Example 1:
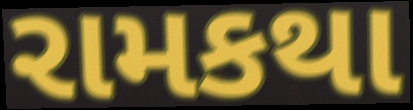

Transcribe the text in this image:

રામકથા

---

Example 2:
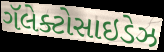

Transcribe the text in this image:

ગૅલેક્ટોસાઇડેઝ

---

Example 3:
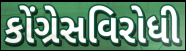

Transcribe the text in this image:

કોંગ્રેસવિરોધી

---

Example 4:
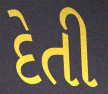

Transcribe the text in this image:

દેતી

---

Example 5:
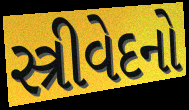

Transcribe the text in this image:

સ્ત્રીવેદનો